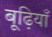
बूढ़ियाँ